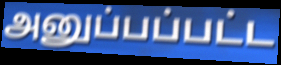
அனுப்பப்பட்ட